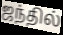
ஜந்தில்